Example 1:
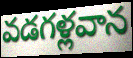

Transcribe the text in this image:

వడగళ్లవాన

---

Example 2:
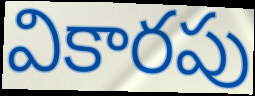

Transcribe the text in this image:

వికారపు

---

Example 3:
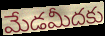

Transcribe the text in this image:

మేడమీదకు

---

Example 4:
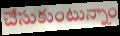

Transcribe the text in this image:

చేసుకుంటున్నాం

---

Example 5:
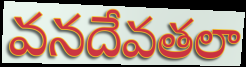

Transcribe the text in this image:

వనదేవతలా